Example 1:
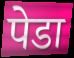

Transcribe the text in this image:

पेडा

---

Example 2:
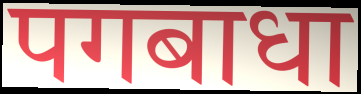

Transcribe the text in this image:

पगबाधा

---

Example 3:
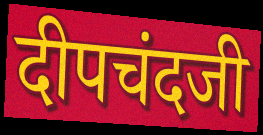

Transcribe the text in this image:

दीपचंदजी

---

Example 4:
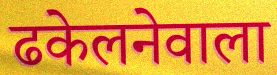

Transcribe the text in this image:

ढकेलनेवाला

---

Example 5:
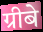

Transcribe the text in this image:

ग्रीबे